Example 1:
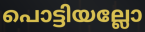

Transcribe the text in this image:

പൊട്ടിയല്ലോ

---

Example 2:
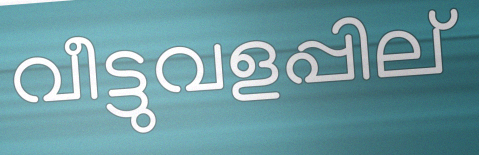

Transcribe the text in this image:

വീട്ടുവളപ്പില്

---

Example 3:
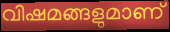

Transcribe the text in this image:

വിഷമങ്ങളുമാണ്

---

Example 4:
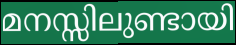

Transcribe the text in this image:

മനസ്സിലുണ്ടായി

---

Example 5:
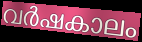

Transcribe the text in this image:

വർഷകാലം